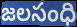
జలసంధి